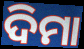
ଦିମା